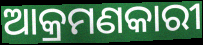
ଆକ୍ରମଣକାରୀ